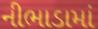
નીભાડામાં